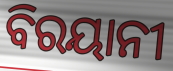
ବିରୟାନୀ